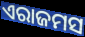
ଏରାଜମସ